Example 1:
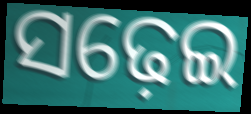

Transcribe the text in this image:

ସଢ଼େଇ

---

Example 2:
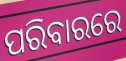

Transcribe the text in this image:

ପରିବାରରେ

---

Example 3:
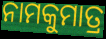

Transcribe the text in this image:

ନାମକୁମାତ୍ର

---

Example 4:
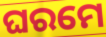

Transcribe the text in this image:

ଘରମେ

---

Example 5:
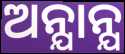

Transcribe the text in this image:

ଅନ୍ଯାନ୍ଯ